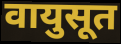
वायुसूत